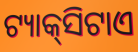
ଟ୍ୟାକ୍‌ସିଟାଏ